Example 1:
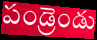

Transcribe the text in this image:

పండ్రెండు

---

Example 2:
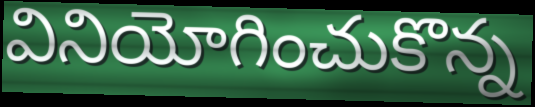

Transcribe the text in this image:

వినియోగించుకొన్న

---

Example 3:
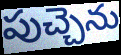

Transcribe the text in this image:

పుచ్చెను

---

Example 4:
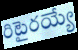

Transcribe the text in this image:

రిటైరయ్యే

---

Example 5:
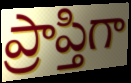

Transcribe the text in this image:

ప్రాప్తిగా